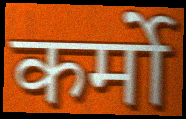
कर्मो